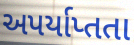
અપર્યાપ્તતા